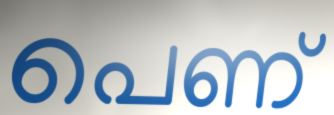
പെണ്